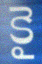
కై